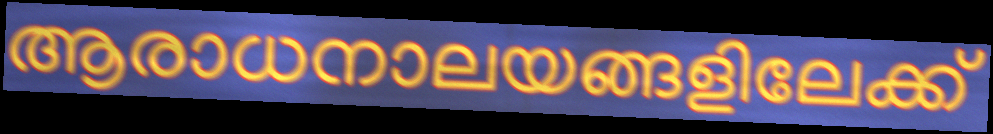
ആരാധനാലയങ്ങളിലേക്ക്